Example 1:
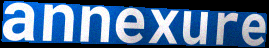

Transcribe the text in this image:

annexure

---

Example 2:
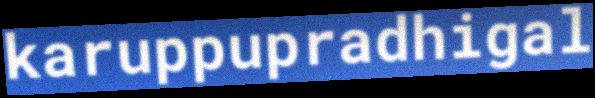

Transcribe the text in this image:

karuppupradhigal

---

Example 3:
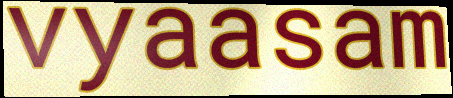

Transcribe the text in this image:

vyaasam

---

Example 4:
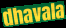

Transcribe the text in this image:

dhavala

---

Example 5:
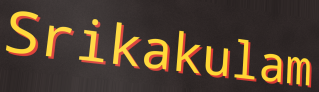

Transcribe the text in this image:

Srikakulam